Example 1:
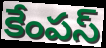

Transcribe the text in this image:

కేంపస్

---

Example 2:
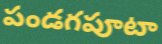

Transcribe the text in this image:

పండగపూటా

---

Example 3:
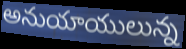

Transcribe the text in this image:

అనుయాయులున్న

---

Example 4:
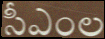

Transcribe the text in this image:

సీఎంల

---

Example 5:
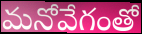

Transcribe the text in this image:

మనోవేగంతో